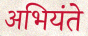
अभियंते